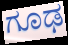
ಗೂಢ